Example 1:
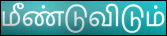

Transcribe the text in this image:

மீண்டுவிடும்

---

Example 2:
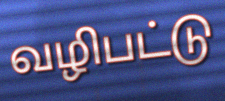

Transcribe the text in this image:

வழிபட்டு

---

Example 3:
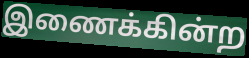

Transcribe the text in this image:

இணைக்கின்ற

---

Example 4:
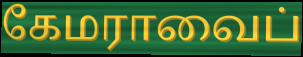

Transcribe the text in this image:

கேமராவைப்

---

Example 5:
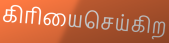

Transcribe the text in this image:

கிரியைசெய்கிற